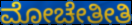
ಮೋಚೇತೀತಿ